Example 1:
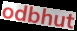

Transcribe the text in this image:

odbhut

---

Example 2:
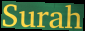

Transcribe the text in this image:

Surah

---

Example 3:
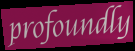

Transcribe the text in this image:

profoundly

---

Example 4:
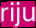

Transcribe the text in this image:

riju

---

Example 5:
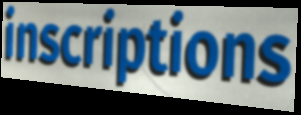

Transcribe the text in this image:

inscriptions